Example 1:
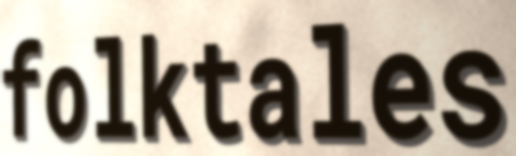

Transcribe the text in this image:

folktales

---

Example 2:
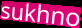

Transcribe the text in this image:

sukhno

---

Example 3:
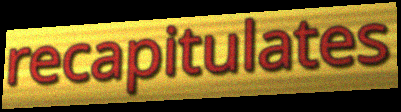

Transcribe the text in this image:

recapitulates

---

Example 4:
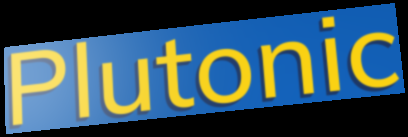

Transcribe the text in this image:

Plutonic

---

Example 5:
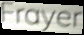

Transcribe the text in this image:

Frayer